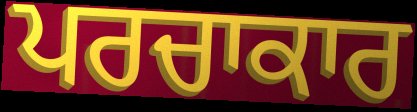
ਪਰਚਾਕਾਰ